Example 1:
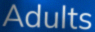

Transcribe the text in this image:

Adults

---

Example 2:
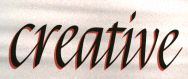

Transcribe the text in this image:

creative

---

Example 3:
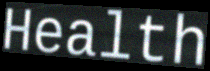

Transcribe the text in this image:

Health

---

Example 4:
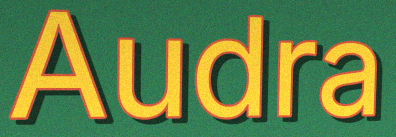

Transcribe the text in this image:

Audra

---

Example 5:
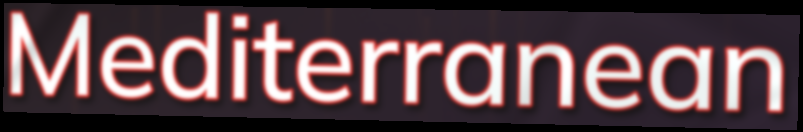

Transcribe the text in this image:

Mediterranean